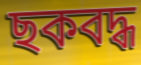
ছকবদ্ধ